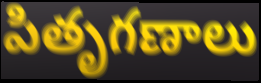
పితృగణాలు